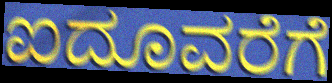
ಐದೂವರೆಗೆ